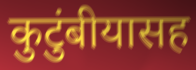
कुटुंबीयासह